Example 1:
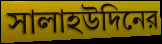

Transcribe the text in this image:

সালাহউদিনের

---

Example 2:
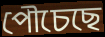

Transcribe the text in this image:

পৌচেছে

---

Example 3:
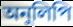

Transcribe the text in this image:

অনুলিপি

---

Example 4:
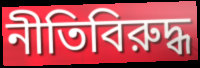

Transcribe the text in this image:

নীতিবিরুদ্ধ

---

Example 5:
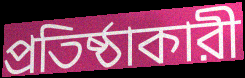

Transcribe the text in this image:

প্রতিষ্ঠাকারী